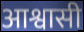
आश्वासी